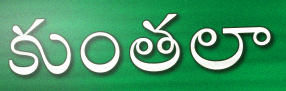
కుంతలా